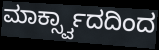
ಮಾರ್ಕ್ಸ್ವಾದದಿಂದ